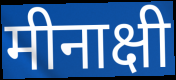
मीनाक्षी